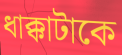
ধাক্কাটাকে